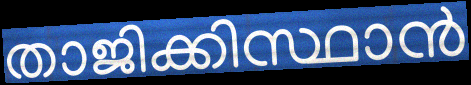
താജിക്കിസ്ഥാൻ